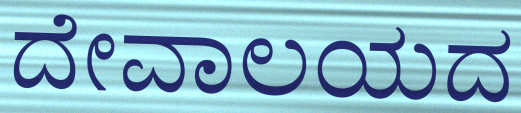
ದೇವಾಲಯದ